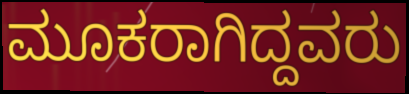
ಮೂಕರಾಗಿದ್ದವರು